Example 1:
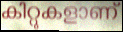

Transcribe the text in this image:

കിറ്റുകളാണ്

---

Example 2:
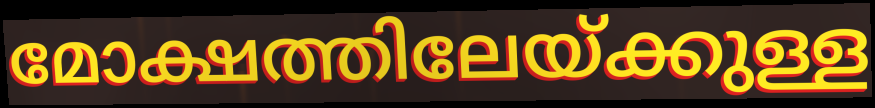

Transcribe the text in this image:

മോക്ഷത്തിലേയ്ക്കുള്ള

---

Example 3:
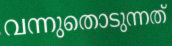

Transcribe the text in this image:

വന്നുതൊടുന്നത്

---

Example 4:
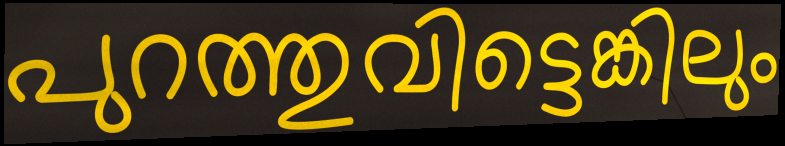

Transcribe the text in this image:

പുറത്തുവിട്ടെങ്കിലും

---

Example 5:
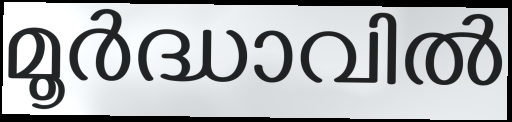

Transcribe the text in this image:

മൂർദ്ധാവിൽ